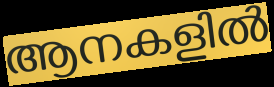
ആനകളിൽ